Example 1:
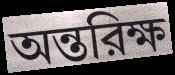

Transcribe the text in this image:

অন্তরিক্ষ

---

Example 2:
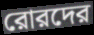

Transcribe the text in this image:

রোরদের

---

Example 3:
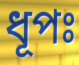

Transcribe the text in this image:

ধূপঃ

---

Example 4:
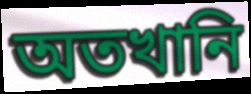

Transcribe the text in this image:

অতখানি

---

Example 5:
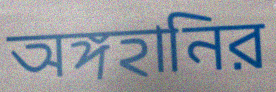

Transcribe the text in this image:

অঙ্গহানির